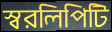
স্বরলিপিটি